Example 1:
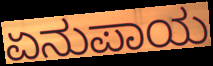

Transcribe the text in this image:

ಏನುಪಾಯ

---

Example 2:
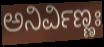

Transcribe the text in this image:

ಅನಿರ್ವಿಣ್ಣಃ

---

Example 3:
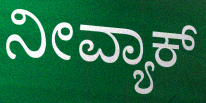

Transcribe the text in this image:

ನೀವ್ಯಾಕ್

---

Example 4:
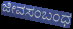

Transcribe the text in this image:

ಜೀವಸಂಬಂಧ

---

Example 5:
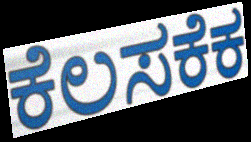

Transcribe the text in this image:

ಕೆಲಸಕೆಕ